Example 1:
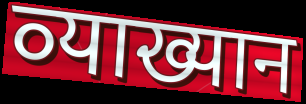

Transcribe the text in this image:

व्‍याख्‍यान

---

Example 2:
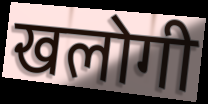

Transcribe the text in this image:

खलोगी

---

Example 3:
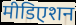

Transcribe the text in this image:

मीडिएशन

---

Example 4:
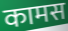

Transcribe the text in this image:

कामस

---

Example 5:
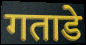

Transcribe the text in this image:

गताडे